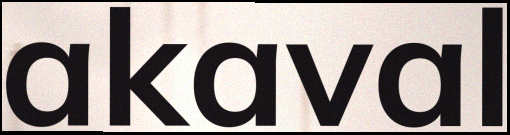
akaval